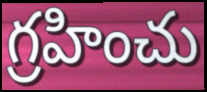
గ్రహించు